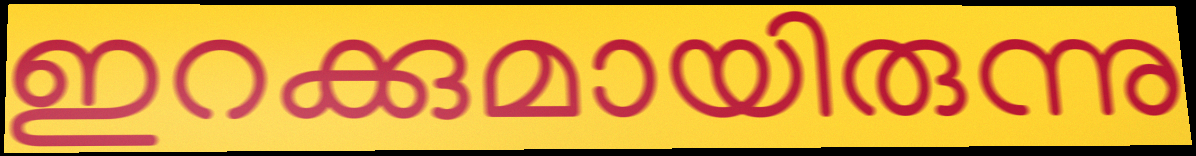
ഇറക്കുമായിരുന്നു